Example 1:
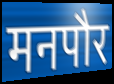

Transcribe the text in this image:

मनपौर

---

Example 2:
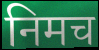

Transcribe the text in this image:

निमच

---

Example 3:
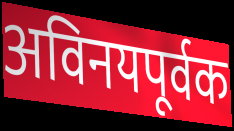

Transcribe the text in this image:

अविनयपूर्वक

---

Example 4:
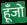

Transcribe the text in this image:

हूँजो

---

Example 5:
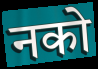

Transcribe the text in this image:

नको